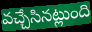
వచ్చేసినట్లుంది